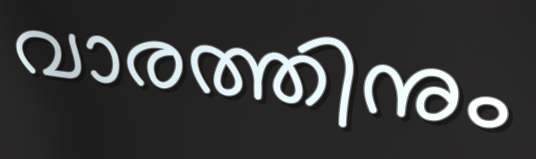
വാരത്തിനും